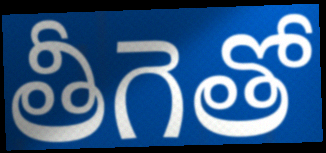
తీగెతో